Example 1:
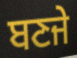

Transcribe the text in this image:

ਬਣਜੇ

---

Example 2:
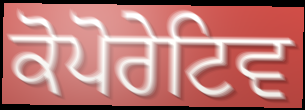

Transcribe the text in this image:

ਕੋਪੋਰੇਟਿਵ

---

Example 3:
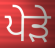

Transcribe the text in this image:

ਪੇੜੇ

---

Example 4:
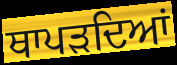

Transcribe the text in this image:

ਥਾਪੜਦਿਆਂ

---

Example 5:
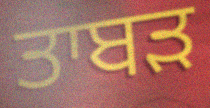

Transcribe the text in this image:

ਤਾਬੜ